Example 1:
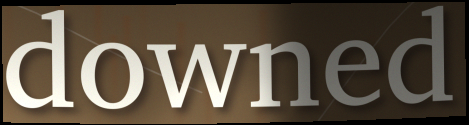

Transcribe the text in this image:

downed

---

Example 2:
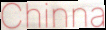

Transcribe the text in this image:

Chinna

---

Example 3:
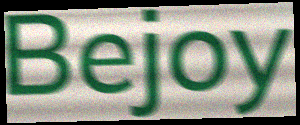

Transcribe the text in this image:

Bejoy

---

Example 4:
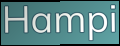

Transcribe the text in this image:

Hampi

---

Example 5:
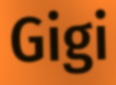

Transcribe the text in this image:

Gigi